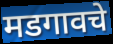
मडगावचे